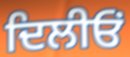
ਦਿਲੀਓਂ